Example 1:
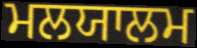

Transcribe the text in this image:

ਮਲਯਾਲਮ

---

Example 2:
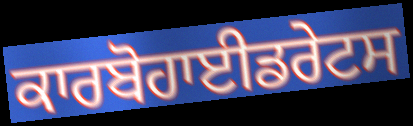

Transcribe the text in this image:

ਕਾਰਬੋਹਾਈਡਰੇਟਸ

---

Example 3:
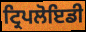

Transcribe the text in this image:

ਟ੍ਰਿਪਲੋਇਡੀ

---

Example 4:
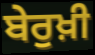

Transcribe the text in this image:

ਬੇਰੁਖ਼ੀ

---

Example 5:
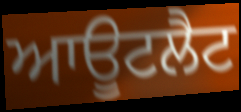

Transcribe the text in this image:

ਆਊਟਲੈਟ